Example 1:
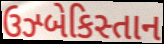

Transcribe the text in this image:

ઉઝ્બેકિસ્તાન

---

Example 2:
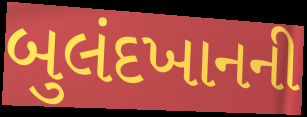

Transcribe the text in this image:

બુલંદખાનની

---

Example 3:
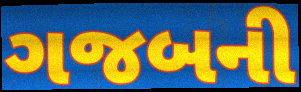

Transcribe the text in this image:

ગજબની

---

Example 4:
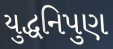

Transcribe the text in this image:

યુદ્ધનિપુણ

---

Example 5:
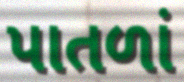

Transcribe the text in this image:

પાતળાં